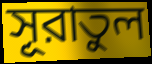
সূরাতুল